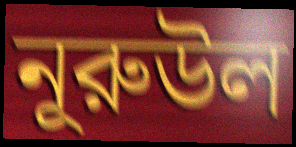
নূরুউল